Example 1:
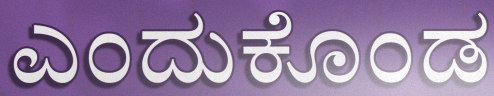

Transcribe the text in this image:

ಎಂದುಕೊಂಡ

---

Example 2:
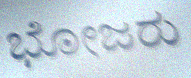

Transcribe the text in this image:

ಭೋಜರು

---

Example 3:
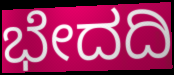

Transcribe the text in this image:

ಭೇದದಿ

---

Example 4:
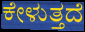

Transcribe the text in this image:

ಕೇಳುತ್ತದೆ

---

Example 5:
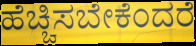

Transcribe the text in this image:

ಹೆಚ್ಚಿಸಬೇಕೆಂದರೆ